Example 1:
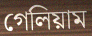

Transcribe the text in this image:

গেলিয়াম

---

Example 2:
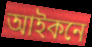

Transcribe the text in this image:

আইকনে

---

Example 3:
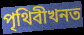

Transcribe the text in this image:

পৃথিবীখনত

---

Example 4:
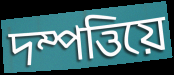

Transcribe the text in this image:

দম্পত্তিয়ে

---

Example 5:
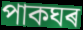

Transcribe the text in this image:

পাকঘৰ